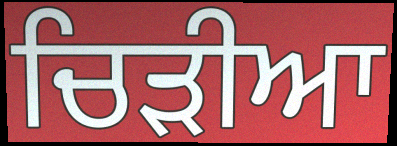
ਚਿੜੀਆ